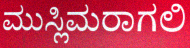
ಮುಸ್ಲಿಮರಾಗಲಿ